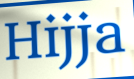
Hijja